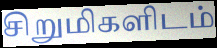
சிறுமிகளிடம்